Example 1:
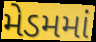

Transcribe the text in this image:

મેડમમાં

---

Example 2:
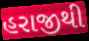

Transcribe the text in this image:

હરાજીથી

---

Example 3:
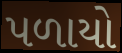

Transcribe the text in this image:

પળાયો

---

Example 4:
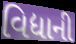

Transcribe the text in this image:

વિદ્યાની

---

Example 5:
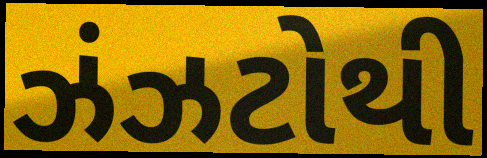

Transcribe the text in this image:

ઝંઝટોથી